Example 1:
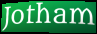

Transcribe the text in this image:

Jotham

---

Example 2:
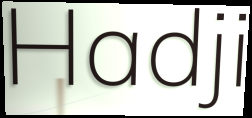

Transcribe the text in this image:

Hadji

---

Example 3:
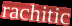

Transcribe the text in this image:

rachitic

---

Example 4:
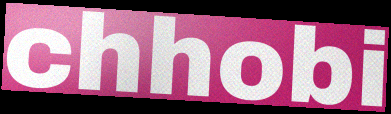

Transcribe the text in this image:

chhobi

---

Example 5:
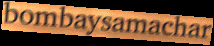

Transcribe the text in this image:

bombaysamachar